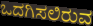
ಒದಗಿಸಲಿರುವ